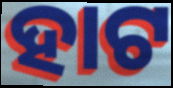
ହାଟ